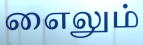
எைலும்